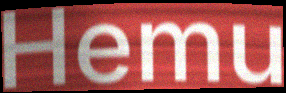
Hemu